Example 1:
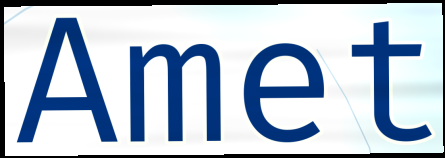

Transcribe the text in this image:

Amet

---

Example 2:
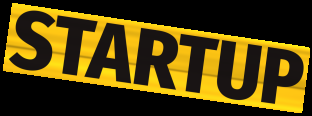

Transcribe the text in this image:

STARTUP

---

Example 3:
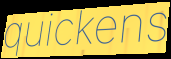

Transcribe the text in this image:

quickens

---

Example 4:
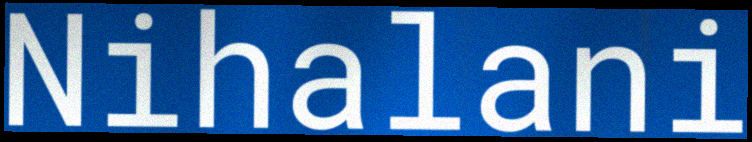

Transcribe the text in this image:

Nihalani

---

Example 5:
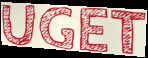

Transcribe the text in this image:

UGET